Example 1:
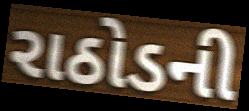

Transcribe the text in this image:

રાઠોડની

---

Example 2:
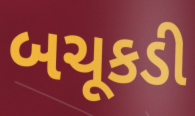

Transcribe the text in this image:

બચૂકડી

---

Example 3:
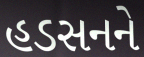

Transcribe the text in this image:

હડસનને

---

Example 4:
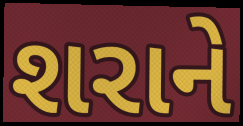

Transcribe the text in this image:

શરાને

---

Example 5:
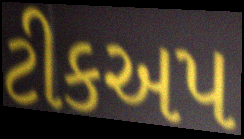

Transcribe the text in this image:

ટીકઅપ